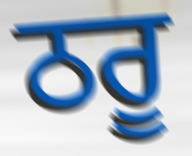
ਠਰੂ